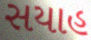
સયાહ